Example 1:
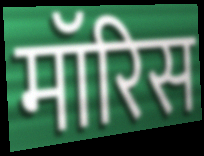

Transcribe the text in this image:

मॉरिस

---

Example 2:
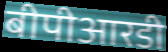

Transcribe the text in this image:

बीपीआरडी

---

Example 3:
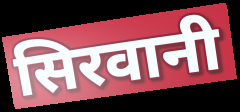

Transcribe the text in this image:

सिरवानी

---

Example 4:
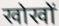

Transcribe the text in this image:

खोखों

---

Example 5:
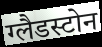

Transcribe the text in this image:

ग्लैडस्टोन